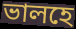
ভালহে